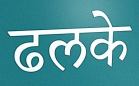
ढलके